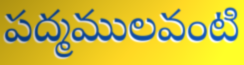
పద్మములవంటి